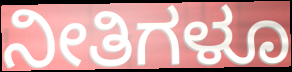
ನೀತಿಗಳೂ